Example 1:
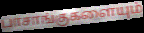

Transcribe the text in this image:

பாசாங்குகளையும்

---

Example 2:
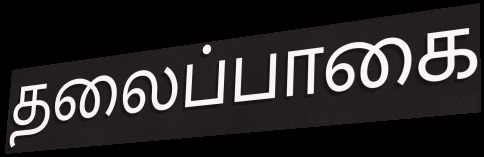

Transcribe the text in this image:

தலைப்பாகை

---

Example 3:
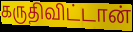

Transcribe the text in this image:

கருதிவிட்டான்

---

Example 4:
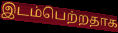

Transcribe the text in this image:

இடம்பெற்றதாக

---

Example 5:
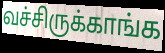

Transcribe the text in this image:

வச்சிருக்காங்க